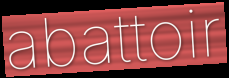
abattoir